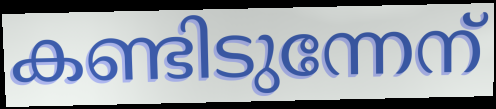
കണ്ടിടുന്നേന്